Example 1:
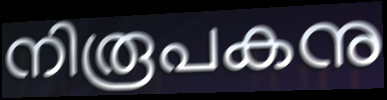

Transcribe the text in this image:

നിരൂപകനു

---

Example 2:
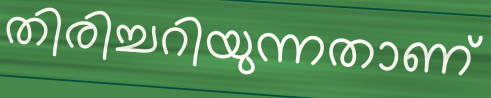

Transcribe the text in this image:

തിരിച്ചറിയുന്നതാണ്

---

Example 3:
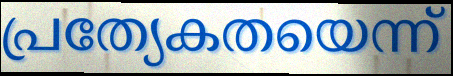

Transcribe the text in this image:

പ്രത്യേകതയെന്ന്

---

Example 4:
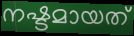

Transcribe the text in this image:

നഷ്ടമായത്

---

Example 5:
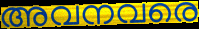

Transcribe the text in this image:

അവനവരെ